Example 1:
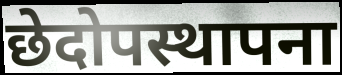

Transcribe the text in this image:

छेदोपस्थापना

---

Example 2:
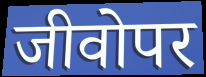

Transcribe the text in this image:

जीवोपर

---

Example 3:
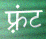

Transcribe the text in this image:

फ़्रंट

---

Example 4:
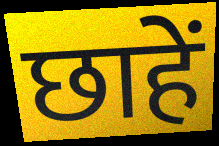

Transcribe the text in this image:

छाहें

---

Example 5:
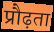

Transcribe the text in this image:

प्रौढ़ता